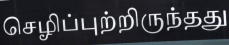
செழிப்புற்றிருந்தது